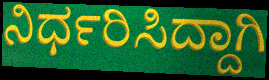
ನಿರ್ಧರಿಸಿದ್ದಾಗಿ